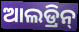
ଆଲଡ୍ରିନ୍